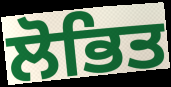
ਲੋਭਿਤ